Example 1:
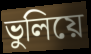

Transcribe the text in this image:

ভুলিয়ে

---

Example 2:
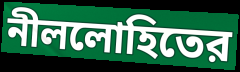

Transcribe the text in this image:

নীললোহিতের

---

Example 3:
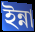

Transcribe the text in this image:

ইন্না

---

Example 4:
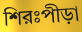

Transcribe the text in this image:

শিরঃপীড়া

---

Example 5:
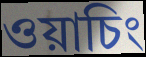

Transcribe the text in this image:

ওয়াচিং